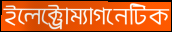
ইলেক্ট্রোম্যাগনেটিক